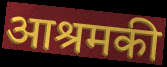
आश्रमकी